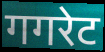
गगरेट